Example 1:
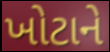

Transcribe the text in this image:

ખોટાને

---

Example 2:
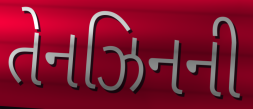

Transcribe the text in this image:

તેનઝિનની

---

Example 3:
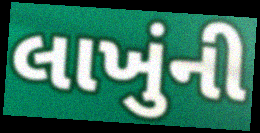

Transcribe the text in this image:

લાખુંની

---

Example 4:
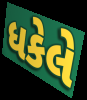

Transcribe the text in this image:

ધકેલે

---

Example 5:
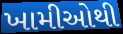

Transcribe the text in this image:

ખામીઓથી